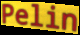
Pelin